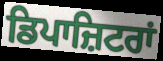
ਡਿਪਾਜ਼ਿਟਰਾਂ